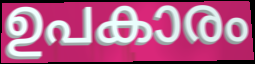
ഉപകാരം